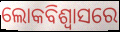
ଲୋକବିଶ୍ୱାସରେ